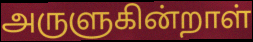
அருளுகின்றாள்